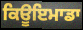
ਕਿਊਇਮਾਡਾ